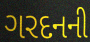
ગરદનની